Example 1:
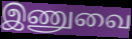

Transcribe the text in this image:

இணுவை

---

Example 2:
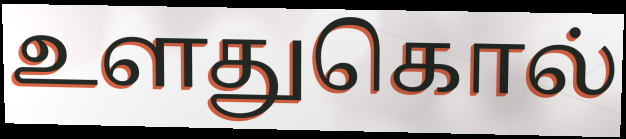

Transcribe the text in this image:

உளதுகொல்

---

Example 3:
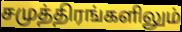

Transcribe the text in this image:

சமுத்திரங்களிலும்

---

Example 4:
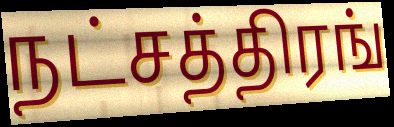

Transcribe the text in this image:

நட்சத்திரங்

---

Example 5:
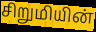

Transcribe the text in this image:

சிறுமியின்